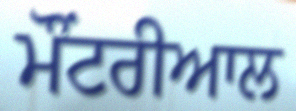
ਮੌਂਟਰੀਆਲ